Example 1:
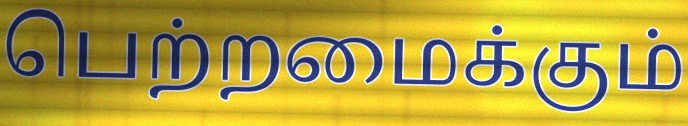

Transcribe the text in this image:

பெற்றமைக்கும்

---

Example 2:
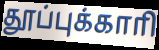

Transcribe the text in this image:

தூப்புக்காரி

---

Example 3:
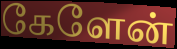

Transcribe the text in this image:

கேளேன்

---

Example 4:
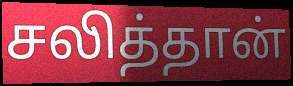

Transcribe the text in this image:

சலித்தான்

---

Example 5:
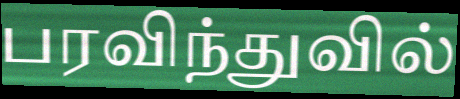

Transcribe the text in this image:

பரவிந்துவில்